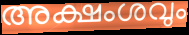
അക്ഷംശവും